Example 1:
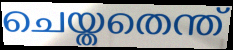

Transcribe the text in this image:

ചെയ്തതെന്ത്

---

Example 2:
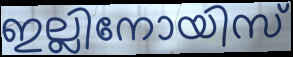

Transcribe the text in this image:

ഇല്ലിനോയിസ്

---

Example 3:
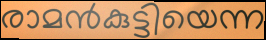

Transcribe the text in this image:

രാമൻകുട്ടിയെന്ന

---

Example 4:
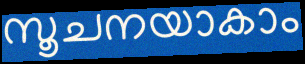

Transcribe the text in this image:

സൂചനയാകാം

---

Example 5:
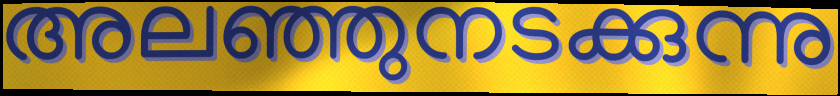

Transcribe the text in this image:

അലഞ്ഞുനടക്കുന്നു